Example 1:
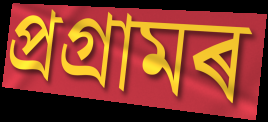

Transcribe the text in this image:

প্ৰগ্ৰামৰ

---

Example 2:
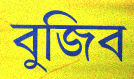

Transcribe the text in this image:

বুজিব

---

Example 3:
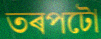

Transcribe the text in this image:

তৰপটো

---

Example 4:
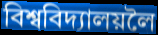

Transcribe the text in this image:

বিশ্ববিদ্যালয়লৈ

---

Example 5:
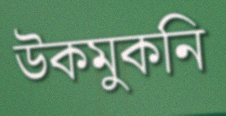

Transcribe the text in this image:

উকমুকনি